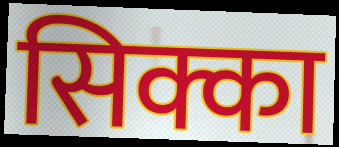
सिक्का